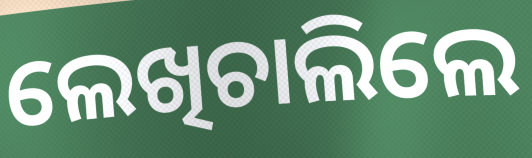
ଲେଖିଚାଲିଲେ